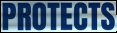
PROTECTS